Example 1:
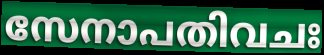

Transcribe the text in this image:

സേനാപതിവചഃ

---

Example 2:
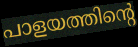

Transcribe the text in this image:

പാളയത്തിന്റെ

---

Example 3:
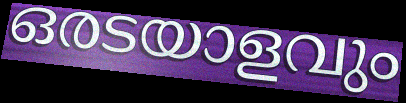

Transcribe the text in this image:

ഒരടയാളവും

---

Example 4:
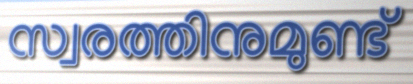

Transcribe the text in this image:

സ്വരത്തിനുമുണ്ട്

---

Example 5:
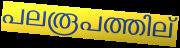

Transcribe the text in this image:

പലരൂപത്തില്